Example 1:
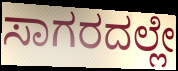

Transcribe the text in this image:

ಸಾಗರದಲ್ಲೇ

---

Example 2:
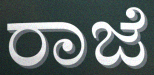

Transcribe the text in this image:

ರಾಜೆ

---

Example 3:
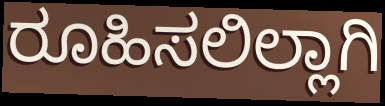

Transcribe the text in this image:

ರೂಹಿಸಲಿಲ್ಲಾಗಿ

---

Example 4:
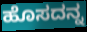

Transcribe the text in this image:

ಹೊಸದನ್ನ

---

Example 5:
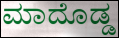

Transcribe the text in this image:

ಮಾದೊಡ್ಡ